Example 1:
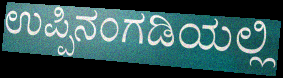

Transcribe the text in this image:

ಉಪ್ಪಿನಂಗಡಿಯಲ್ಲಿ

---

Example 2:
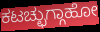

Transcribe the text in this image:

ಕಟಚ್ಛುಗ್ಗಾಹೋ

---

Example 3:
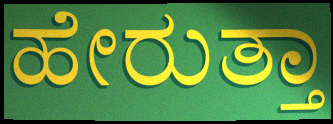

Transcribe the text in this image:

ಹೇರುತ್ತಾ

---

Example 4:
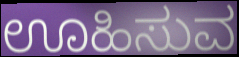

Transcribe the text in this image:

ಊಹಿಸುವ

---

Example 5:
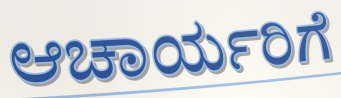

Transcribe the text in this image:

ಆಚಾರ್ಯರಿಗೆ